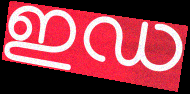
ഇഡ